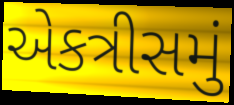
એકત્રીસમું